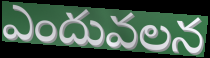
ఎందువలన